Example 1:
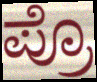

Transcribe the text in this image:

ಪ್ರೊ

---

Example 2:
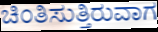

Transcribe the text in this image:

ಚಿಂತಿಸುತ್ತಿರುವಾಗ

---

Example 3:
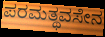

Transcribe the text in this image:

ಪರಮತ್ಥವಸೇನ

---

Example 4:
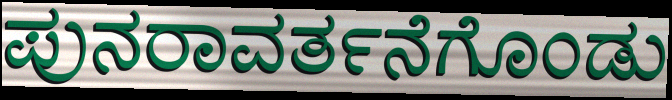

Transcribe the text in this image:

ಪುನರಾವರ್ತನೆಗೊಂಡು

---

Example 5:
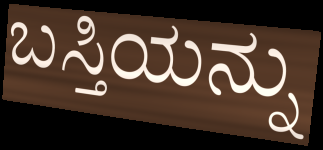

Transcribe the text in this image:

ಬಸ್ತಿಯನ್ನು